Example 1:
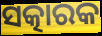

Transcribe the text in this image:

ସତ୍କାରକ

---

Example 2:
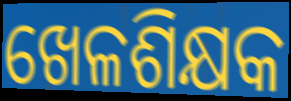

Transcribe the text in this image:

ଖେଳଶିକ୍ଷକ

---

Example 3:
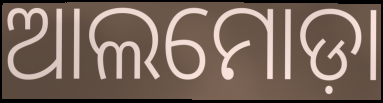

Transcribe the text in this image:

ଆଲମୋଡ଼ା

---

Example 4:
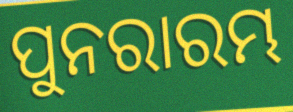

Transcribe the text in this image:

ପୁନରାରମ୍ଭ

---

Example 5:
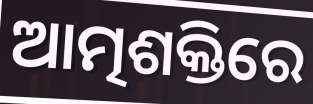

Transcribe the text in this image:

ଆତ୍ମଶକ୍ତିରେ